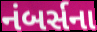
નંબર્સના